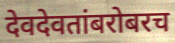
देवदेवतांबरोबरच